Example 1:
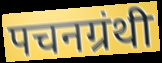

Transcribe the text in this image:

पचनग्रंथी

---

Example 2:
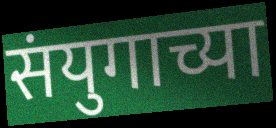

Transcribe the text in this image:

संयुगाच्या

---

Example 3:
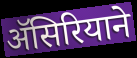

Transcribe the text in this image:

ॲसिरियाने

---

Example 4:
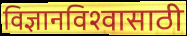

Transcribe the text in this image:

विज्ञानविश्वासाठी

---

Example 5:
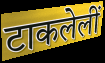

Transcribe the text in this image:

टाकलेलीं